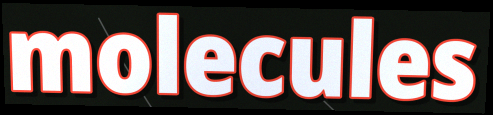
molecules